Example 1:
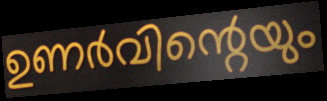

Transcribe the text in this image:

ഉണർവിന്റെയും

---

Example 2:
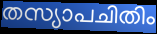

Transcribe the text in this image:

തസ്യാപചിതിം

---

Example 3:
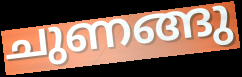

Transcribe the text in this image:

ചുണങ്ങു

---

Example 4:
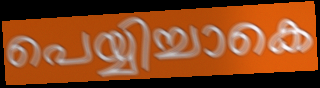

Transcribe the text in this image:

പെയ്യിച്ചാകെ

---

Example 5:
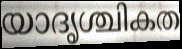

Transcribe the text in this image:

യാദൃശ്ചികത